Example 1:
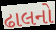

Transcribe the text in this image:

ઢાલનો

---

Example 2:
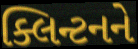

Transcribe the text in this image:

ક્લિન્ટનને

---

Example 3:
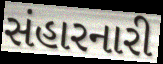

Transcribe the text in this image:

સંહારનારી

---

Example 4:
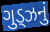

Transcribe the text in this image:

ગુડ્ઝનું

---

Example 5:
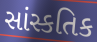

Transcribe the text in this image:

સાંસ્કતિક